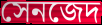
সেনজেদ